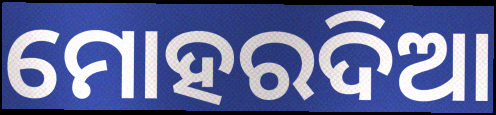
ମୋହରଦିଆ